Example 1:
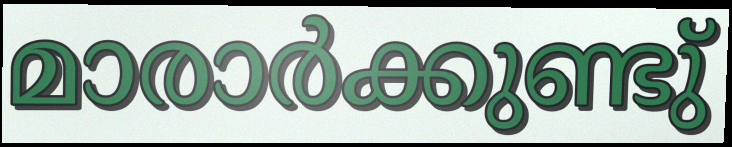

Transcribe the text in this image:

മാരാർക്കുണ്ടു്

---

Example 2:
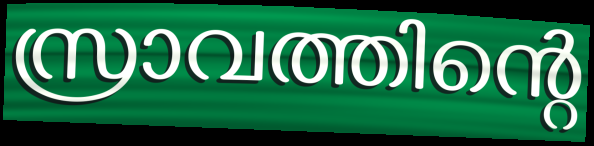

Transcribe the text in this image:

സ്രാവത്തിന്റെ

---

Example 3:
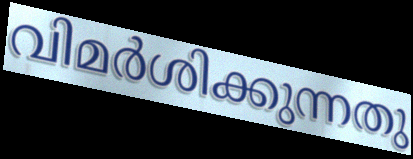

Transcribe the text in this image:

വിമർശിക്കുന്നതു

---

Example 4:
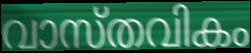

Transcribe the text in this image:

വാസ്തവികം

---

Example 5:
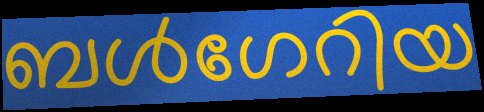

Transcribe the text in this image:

ബൾഗേറിയ